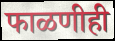
फाळणीही